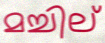
മച്ചില്